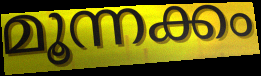
മൂന്നക്കം